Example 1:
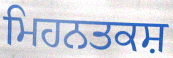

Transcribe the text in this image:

ਮਿਹਨਤਕਸ਼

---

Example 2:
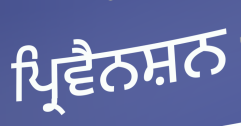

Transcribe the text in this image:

ਪ੍ਰਿਵੈਨਸ਼ਨ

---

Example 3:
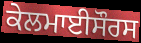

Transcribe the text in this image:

ਕੇਲਮਾਈਸੌਰਸ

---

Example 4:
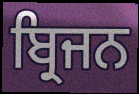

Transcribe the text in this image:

ਬ੍ਰਿਜਨ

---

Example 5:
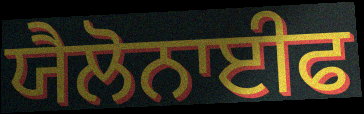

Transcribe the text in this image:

ਯੈਲੋਨਾਈਫ